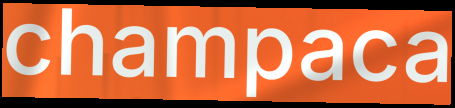
champaca